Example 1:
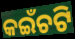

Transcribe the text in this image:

କଇଁଚଟି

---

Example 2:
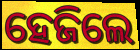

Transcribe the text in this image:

ହେଜିଲେ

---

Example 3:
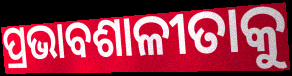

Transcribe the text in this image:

ପ୍ରଭାବଶାଳୀତାକୁ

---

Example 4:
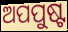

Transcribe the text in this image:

ଅପପୁଷ୍ଟ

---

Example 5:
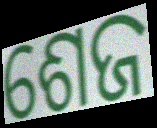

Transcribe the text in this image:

ଶେଜ